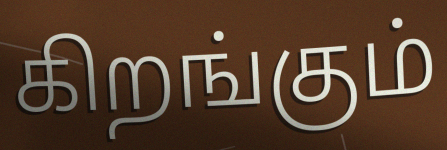
கிறங்கும்